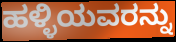
ಹಳ್ಳಿಯವರನ್ನು